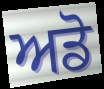
ਅਡੋ